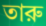
তারু